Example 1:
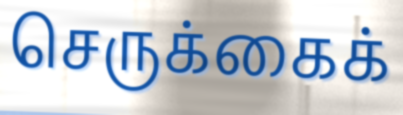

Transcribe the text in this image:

செருக்கைக்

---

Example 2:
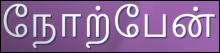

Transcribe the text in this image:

நோற்பேன்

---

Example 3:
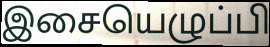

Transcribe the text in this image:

இசையெழுப்பி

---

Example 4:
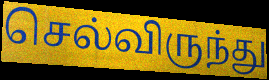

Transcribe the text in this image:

செல்விருந்து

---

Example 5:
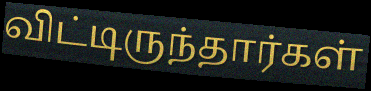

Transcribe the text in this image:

விட்டிருந்தார்கள்